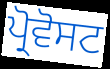
ਪ੍ਰੋਵੋਸਟ